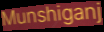
Munshiganj